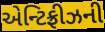
એન્ટિફ્રીઝની